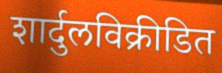
शार्दुलविक्रीडित